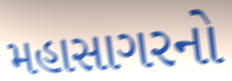
મહાસાગરનો